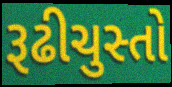
રૂઢીચુસ્તો